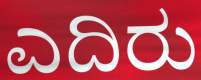
ಎದಿರು